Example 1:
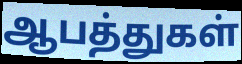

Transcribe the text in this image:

ஆபத்துகள்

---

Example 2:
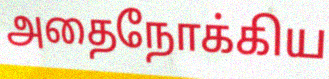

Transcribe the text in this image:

அதைநோக்கிய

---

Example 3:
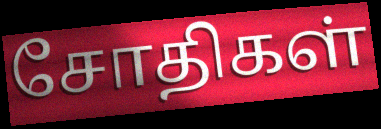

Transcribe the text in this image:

சோதிகள்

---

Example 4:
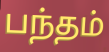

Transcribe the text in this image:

பந்தம்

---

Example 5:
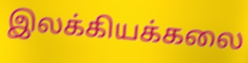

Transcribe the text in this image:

இலக்கியக்கலை